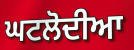
ਘਟਲੋਦੀਆ